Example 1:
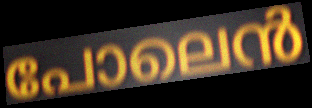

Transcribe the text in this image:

പോലെൻ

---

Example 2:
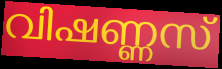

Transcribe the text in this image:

വിഷണ്ണസ്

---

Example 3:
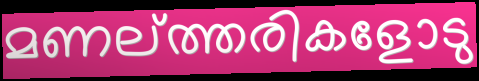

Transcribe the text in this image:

മണല്ത്തരികളോടു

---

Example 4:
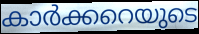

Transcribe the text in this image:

കാർക്കറെയുടെ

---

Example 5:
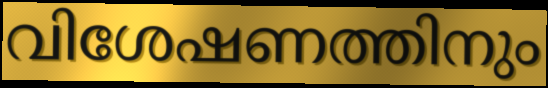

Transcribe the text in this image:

വിശേഷണത്തിനും